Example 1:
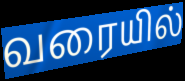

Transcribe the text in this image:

வரையில்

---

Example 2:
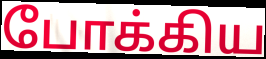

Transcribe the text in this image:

போக்கிய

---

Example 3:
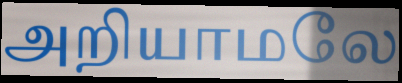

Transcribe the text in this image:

அறியாமலே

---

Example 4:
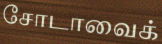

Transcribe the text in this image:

சோடாவைக்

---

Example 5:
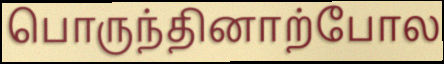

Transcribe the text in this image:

பொருந்தினாற்போல